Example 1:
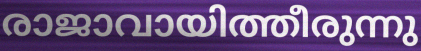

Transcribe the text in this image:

രാജാവായിത്തീരുന്നു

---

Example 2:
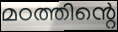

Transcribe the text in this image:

മഠത്തിന്റെ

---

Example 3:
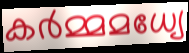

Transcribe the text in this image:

കർമ്മമധ്യേ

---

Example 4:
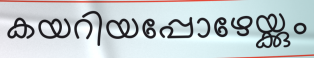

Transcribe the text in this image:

കയറിയപ്പോഴേയ്ക്കും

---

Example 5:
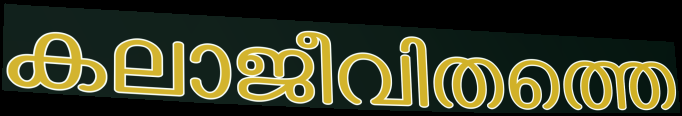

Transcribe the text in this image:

കലാജീവിതത്തെ